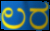
ಲರ